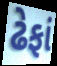
ઢેફાં